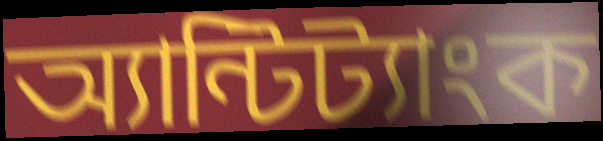
অ্যান্টিট্যাংক